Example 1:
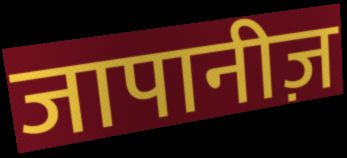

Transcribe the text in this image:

जापानीज़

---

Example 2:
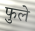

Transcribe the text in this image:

फुले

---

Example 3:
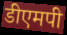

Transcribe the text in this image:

डीएमपी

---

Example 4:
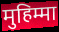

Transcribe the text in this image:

मुहिम्मा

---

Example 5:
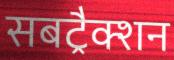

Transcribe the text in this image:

सबट्रैक्शन